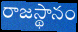
రాజస్థానం